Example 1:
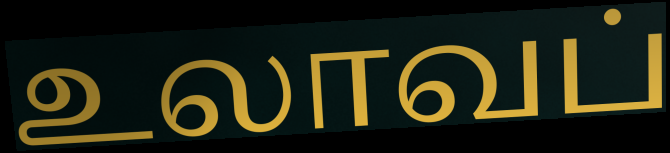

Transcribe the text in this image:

உலாவப்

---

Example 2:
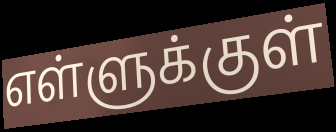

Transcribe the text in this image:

எள்ளுக்குள்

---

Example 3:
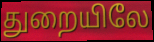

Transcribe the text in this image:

துறையிலே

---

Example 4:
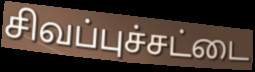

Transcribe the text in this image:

சிவப்புச்சட்டை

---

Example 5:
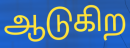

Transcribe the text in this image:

ஆடுகிற